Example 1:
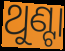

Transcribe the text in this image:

ଥୁଣ୍ଟା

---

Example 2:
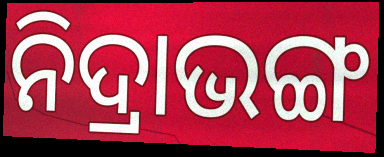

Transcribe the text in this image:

ନିଦ୍ରାଭଙ୍ଗ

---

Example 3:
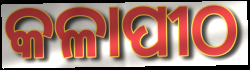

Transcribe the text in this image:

କଳାପୀଠ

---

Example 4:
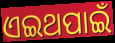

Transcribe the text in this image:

ଏଇଥପାଇଁ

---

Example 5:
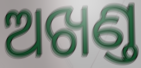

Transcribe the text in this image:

ଅଖଣ୍ତ